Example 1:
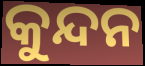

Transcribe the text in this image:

କୁନ୍ଦନ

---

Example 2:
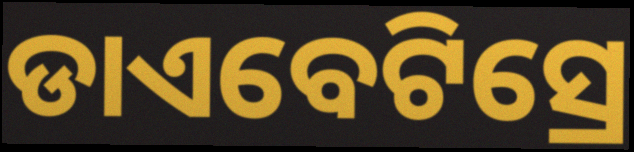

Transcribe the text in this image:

ଡାଏବେଟିସ୍ରେ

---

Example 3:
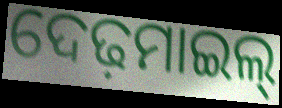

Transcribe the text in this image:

ଦେଢ଼ମାଇଲ୍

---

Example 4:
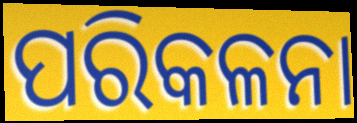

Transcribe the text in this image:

ପରିକଳନା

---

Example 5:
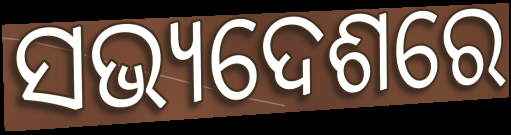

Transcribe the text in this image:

ସଭ୍ୟଦେଶରେ